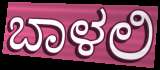
ಬಾಳಲಿ